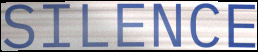
SILENCE